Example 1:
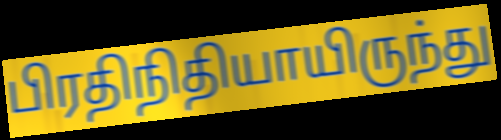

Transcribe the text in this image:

பிரதிநிதியாயிருந்து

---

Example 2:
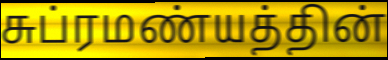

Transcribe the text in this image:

சுப்ரமண்யத்தின்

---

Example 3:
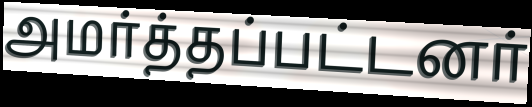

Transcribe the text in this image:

அமர்த்தப்பட்டனர்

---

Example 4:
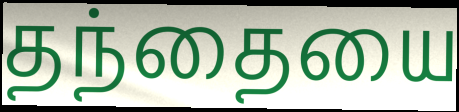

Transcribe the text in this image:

தந்தையை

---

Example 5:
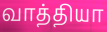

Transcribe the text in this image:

வாத்தியா